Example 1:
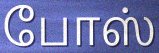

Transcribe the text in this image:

போஸ்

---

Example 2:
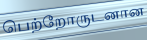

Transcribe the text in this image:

பெற்றோருடனான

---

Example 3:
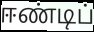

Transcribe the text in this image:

ஈண்டிப்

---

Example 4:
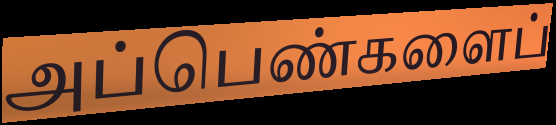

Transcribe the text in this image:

அப்பெண்களைப்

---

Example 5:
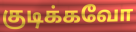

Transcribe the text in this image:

குடிக்கவோ